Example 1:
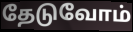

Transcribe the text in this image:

தேடுவோம்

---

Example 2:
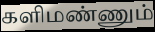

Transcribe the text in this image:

களிமண்ணும்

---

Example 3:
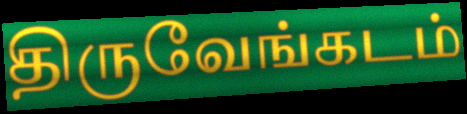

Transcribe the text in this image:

திருவேங்கடம்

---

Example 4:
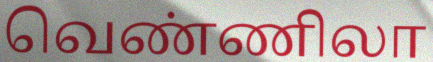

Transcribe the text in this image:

வெண்ணிலா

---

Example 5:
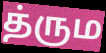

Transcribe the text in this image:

த்ரும